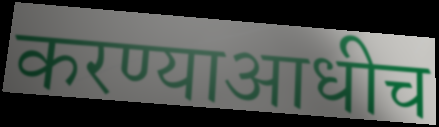
करण्याआधीच